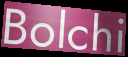
Bolchi